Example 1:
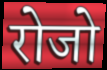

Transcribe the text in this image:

रोजो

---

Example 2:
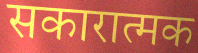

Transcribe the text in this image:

सकारात्मक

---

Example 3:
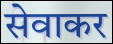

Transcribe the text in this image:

सेवाकर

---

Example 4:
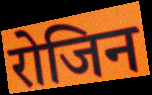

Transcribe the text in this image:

रोजिन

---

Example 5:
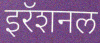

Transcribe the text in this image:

इरॅशनल